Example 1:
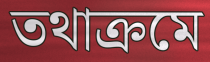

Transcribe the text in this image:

তথাক্ৰমে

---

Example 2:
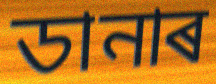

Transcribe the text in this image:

ডানাৰ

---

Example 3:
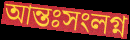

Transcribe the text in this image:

আন্তঃসংলগ্ন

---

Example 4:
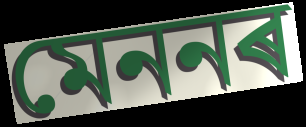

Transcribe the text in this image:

মেননৰ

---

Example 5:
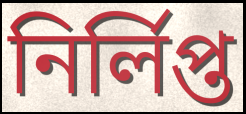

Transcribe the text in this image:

নিৰ্লিপ্ত